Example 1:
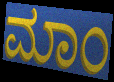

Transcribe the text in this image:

ಮಾಂ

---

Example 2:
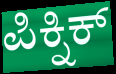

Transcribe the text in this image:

ಪಿಕ್ನಿಕ್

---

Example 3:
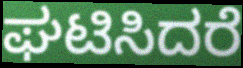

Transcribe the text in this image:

ಘಟಿಸಿದರೆ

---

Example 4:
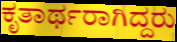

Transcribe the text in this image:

ಕೃತಾರ್ಥರಾಗಿದ್ದರು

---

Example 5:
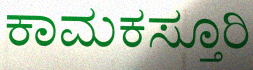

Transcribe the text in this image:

ಕಾಮಕಸ್ತೂರಿ